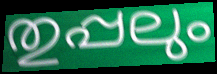
തുപ്പലും